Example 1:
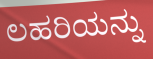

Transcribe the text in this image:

ಲಹರಿಯನ್ನು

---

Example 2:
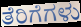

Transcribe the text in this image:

ತೆರಿಗೆಗಳು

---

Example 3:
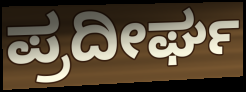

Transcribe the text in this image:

ಪ್ರದೀರ್ಘ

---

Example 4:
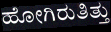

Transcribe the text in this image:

ಹೋಗಿರುತಿತ್ತು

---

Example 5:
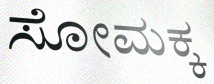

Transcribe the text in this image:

ಸೋಮಕ್ಕ